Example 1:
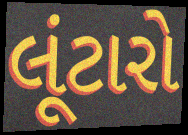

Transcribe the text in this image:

લૂંટારો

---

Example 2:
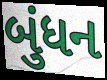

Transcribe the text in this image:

બુંધન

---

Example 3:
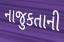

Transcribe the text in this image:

નાજુકતાની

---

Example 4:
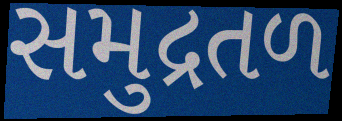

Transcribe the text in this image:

સમુદ્રતળ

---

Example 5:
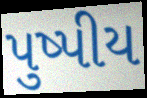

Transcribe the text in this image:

પુષ્પીય